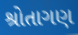
શ્રોતાગણ